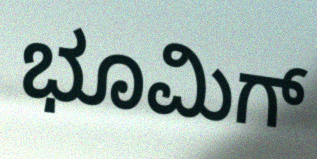
ಭೂಮಿಗ್